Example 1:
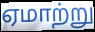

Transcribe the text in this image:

ஏமாற்று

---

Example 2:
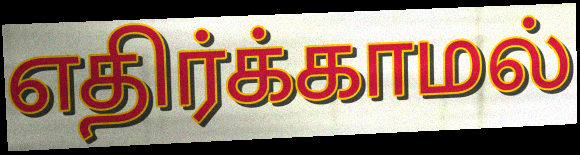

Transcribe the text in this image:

எதிர்க்காமல்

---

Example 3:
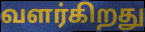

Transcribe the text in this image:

வளர்கிறது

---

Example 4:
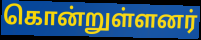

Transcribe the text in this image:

கொன்றுள்ளனர்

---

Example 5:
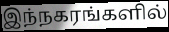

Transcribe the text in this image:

இந்நகரங்களில்